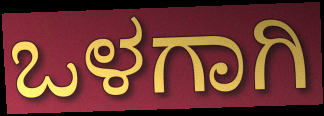
ಒಳಗಾಗಿ